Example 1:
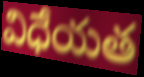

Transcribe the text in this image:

విధేయత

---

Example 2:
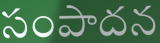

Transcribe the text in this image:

సంపాదన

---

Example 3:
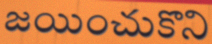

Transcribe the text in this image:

జయించుకొని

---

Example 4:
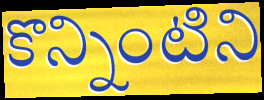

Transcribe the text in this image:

కొన్నింటిని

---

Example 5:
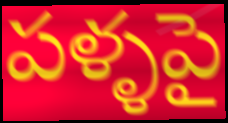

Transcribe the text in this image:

పళ్ళపై